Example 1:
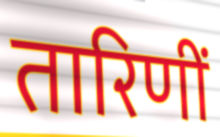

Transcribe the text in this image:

तारिणीं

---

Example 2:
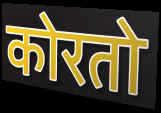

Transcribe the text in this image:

कोरतो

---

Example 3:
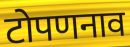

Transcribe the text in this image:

टोपणनाव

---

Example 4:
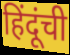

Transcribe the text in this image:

हिंदूंची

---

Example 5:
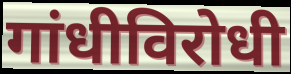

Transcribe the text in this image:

गांधीविरोधी